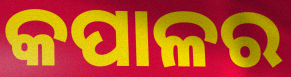
କପାଳର